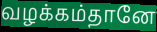
வழக்கம்தானே